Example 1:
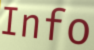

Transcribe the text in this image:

Info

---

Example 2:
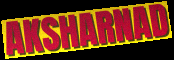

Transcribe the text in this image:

AKSHARNAD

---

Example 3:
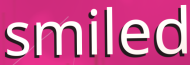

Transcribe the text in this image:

smiled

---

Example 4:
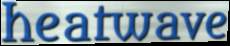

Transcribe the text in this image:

heatwave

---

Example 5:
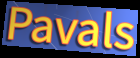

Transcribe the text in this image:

Pavals